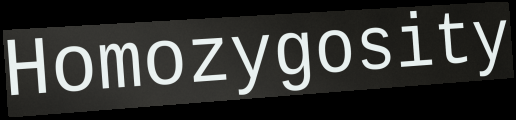
Homozygosity